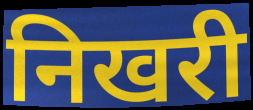
निखरी